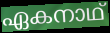
ഏകനാഥ്